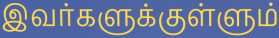
இவர்களுக்குள்ளும்